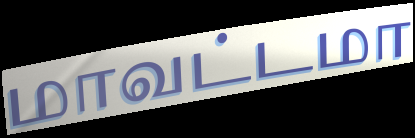
மாவட்டமா